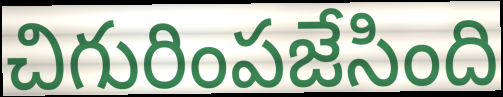
చిగురింపజేసింది